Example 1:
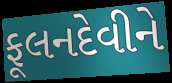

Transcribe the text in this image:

ફૂલનદેવીને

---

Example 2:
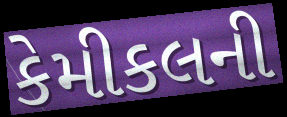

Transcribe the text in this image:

કેમીકલની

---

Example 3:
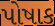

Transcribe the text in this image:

પોષાક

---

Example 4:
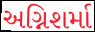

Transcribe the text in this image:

અગ્નિશર્મા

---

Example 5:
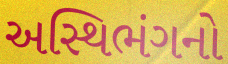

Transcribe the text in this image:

અસ્થિભંગનો